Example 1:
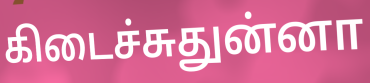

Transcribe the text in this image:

கிடைச்சுதுன்னா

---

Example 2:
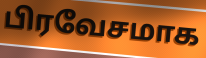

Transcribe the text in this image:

பிரவேசமாக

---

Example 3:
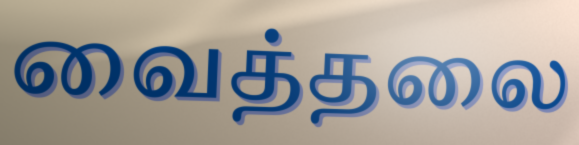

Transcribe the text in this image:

வைத்தலை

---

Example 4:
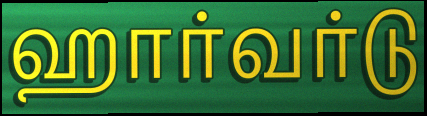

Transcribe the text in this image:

ஹார்வர்டு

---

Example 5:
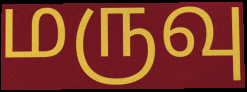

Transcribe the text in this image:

மருவு